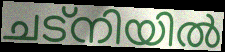
ചട്നിയിൽ